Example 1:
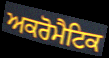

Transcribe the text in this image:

ਅਕਰੋਮੈਟਿਕ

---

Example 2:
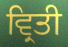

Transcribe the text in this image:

ਵ੍ਰਿਤੀ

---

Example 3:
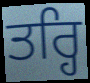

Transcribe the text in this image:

ਤਰ੍ਹਿ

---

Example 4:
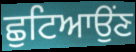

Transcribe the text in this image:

ਛੁਟਿਆਉਂਣ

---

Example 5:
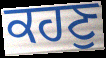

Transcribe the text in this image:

ਕਹਣੁ